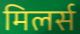
मिलर्स